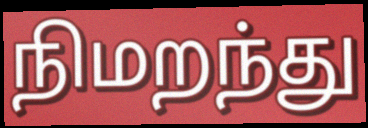
நிமறந்து